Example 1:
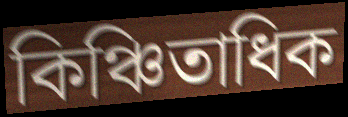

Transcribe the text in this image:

কিঞ্চিতাধিক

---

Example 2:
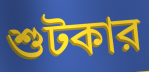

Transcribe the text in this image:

শুটকার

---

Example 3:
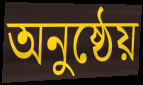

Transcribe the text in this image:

অনুষ্ঠেয়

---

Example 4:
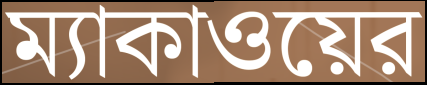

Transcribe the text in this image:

ম্যাকাওয়ের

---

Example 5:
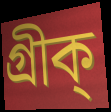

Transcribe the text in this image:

গ্রীক্